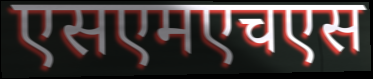
एसएमएचएस